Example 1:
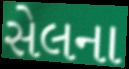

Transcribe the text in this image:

સેલના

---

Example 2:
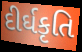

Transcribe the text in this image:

દીર્ઘકૃતિ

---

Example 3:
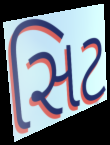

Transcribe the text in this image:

સિટ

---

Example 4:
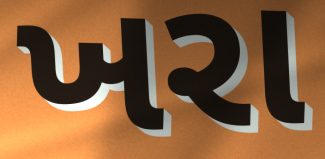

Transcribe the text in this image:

ખરા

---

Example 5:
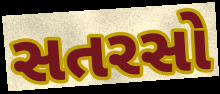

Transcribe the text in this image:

સતરસો